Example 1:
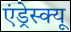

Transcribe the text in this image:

एंड्रेस्क्यू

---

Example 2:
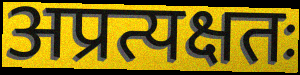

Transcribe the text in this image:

अप्रत्यक्षतः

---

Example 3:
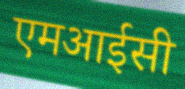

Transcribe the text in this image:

एमआईसी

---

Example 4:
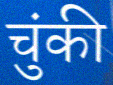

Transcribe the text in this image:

चुंकी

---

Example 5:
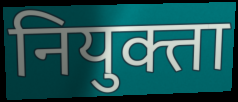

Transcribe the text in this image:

नियुक्ता